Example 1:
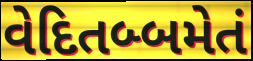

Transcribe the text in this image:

વેદિતબ્બમેતં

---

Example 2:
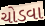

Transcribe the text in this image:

ચોડવા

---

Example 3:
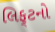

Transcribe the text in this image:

લિફ્‌ટનો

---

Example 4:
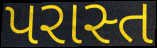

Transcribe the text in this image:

પરાસ્ત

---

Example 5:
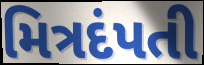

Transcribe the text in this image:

મિત્રદંપતી